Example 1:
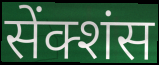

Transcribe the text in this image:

सेंक्शंस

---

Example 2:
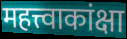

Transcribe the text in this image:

महत्त्वाकांक्षा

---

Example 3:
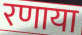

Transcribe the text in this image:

रणाया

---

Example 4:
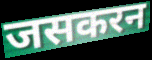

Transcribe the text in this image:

जसकरन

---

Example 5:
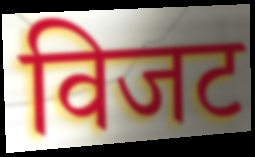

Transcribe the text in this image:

विजट